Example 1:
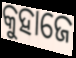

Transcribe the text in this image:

କୁହାଜେ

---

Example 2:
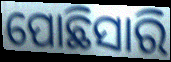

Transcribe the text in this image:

ପୋଛିସାରି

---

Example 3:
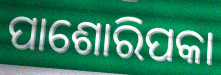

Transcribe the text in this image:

ପାଶୋରିପକା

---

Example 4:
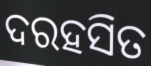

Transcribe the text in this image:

ଦରହସିତ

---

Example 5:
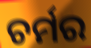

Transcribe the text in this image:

ଚର୍ମର